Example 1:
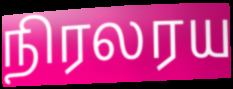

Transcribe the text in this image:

நிரலரய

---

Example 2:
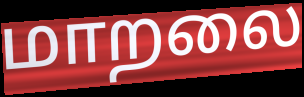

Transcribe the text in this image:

மாறலை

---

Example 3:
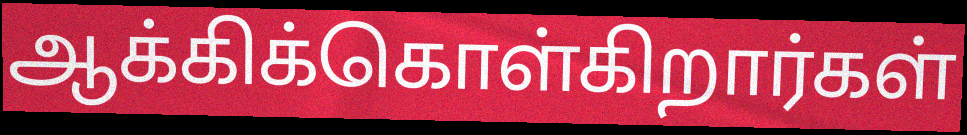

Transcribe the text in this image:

ஆக்கிக்கொள்கிறார்கள்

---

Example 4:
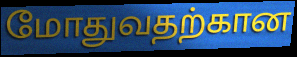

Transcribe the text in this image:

மோதுவதற்கான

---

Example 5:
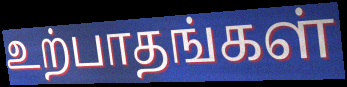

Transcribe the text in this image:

உற்பாதங்கள்